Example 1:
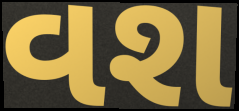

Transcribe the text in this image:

વશ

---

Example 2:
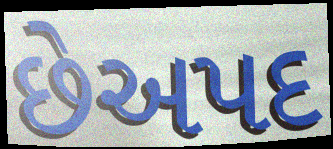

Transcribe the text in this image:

છેઅપદ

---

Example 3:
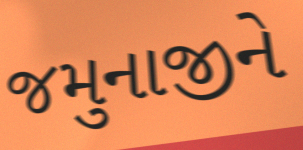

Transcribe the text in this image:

જમુનાજીને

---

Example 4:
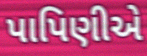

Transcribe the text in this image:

પાપિણીએ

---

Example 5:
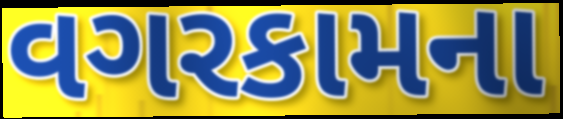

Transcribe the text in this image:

વગરકામના